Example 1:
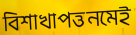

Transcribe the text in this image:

বিশাখাপত্তনমেই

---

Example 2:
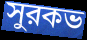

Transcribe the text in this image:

সুরকভ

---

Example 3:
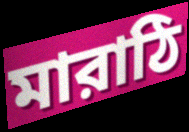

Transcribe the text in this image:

মারাঠি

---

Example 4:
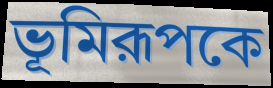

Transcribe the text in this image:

ভূমিরূপকে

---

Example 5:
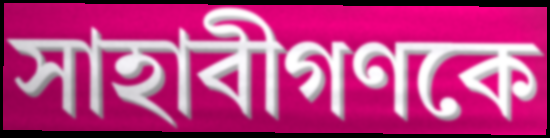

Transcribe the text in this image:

সাহাবীগণকে